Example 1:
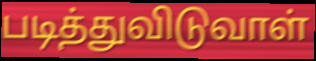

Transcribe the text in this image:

படித்துவிடுவாள்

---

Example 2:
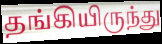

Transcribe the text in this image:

தங்கியிருந்து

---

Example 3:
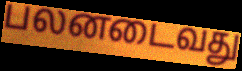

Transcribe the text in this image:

பலனடைவது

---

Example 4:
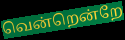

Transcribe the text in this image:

வென்றென்றே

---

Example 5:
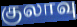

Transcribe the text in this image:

குலாவு